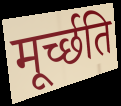
मूर्च्छति